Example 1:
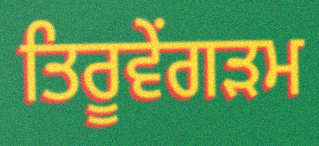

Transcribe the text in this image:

ਤਿਰੂਵੇਂਗੜਮ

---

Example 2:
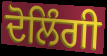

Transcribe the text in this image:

ਦੋਲਿੰਗੀ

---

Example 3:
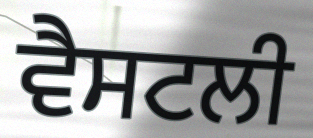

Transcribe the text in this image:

ਵੈਸਟਲੀ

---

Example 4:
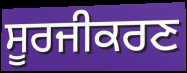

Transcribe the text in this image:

ਸੂਰਜੀਕਰਣ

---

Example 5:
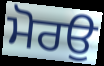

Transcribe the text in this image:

ਮੋਰਉ